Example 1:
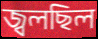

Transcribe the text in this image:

জ্বলছিল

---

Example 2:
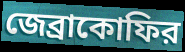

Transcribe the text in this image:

জেব্রাকোফির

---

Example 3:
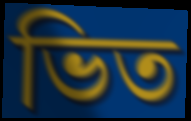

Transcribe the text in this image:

ভিত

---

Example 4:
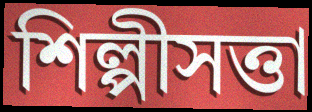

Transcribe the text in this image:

শিল্পীসত্তা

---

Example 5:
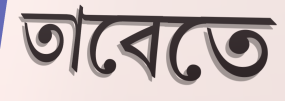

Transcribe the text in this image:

তাবেতে